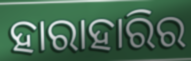
ହାରାହାରିର